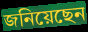
জনিয়েছেন